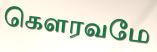
கௌரவமே